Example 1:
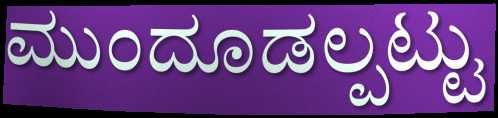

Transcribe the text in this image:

ಮುಂದೂಡಲ್ಪಟ್ಟು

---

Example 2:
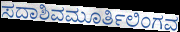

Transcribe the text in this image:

ಸದಾಶಿವಮೂರ್ತಿಲಿಂಗವ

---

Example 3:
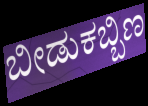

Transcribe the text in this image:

ಬೀಡುಕಬ್ಬಿಣ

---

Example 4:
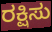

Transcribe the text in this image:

ರಕ್ಷಿಸು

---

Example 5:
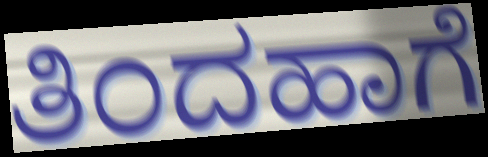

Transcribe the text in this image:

ತಿಂದಹಾಗೆ